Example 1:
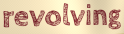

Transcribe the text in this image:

revolving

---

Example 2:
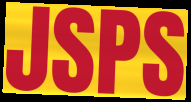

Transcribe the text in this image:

JSPS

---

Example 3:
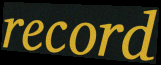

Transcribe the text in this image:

record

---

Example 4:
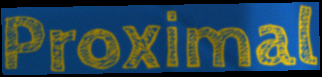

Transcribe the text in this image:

Proximal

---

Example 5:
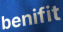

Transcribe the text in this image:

benifit